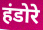
हंडोरे